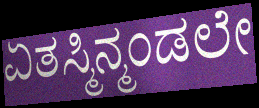
ಏತಸ್ಮಿನ್ಮಂಡಲೇ